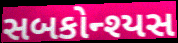
સબકોન્શ્યસ